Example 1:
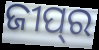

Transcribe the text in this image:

ଜୀପ୍‌ର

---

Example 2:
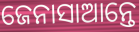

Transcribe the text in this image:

ଜେନାସାଆନ୍ତେ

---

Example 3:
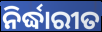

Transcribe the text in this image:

ନିର୍ଦ୍ଧାରୀତ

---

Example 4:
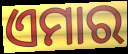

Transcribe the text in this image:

ଏମାର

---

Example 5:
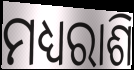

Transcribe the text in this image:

ମଧ୍ୟରାଶି